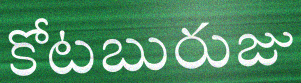
కోటబురుజు